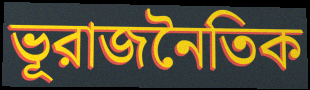
ভূরাজনৈতিক